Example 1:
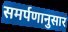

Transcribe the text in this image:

समर्पणानुसार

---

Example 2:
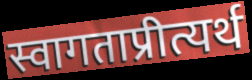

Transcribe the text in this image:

स्वागताप्रीत्यर्थ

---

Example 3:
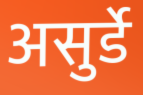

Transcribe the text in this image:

असुर्डे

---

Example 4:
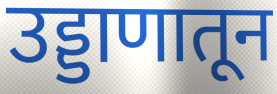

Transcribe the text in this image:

उड्डाणातून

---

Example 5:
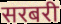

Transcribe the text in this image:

सरबरी